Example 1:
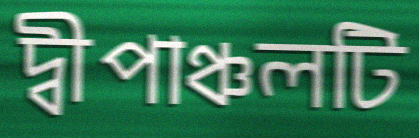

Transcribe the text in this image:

দ্বীপাঞ্চলটি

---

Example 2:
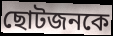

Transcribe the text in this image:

ছোটজনকে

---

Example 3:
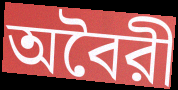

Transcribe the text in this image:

অবৈরী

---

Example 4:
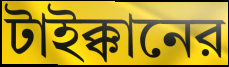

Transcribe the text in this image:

টাইক্কানের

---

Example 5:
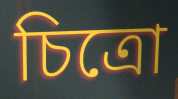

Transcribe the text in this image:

চিত্রো